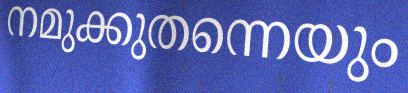
നമുക്കുതന്നെയും